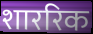
शाररिक